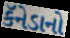
કૅનેડાનો